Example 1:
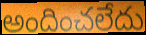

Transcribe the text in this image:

అందించలేదు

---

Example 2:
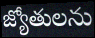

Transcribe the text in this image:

జ్యోతులను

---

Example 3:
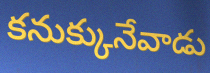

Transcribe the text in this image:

కనుక్కునేవాడు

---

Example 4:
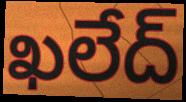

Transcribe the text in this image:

ఖలేద్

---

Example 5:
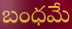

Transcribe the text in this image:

బంధమే